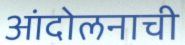
आंदोलनाची